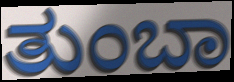
ತುಂಬಾ